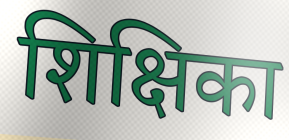
शिक्षिका